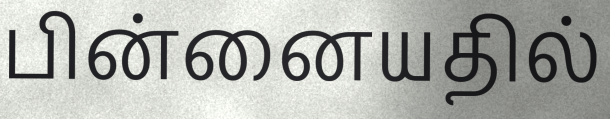
பின்னையதில்